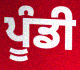
ਪੂੰਡੀ